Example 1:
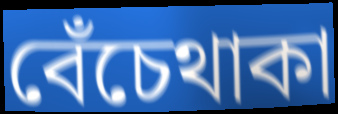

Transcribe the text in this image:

বেঁচেথাকা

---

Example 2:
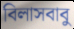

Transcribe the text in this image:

বিলাসবাবু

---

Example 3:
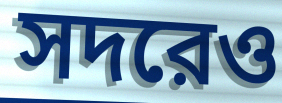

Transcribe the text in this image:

সদরেও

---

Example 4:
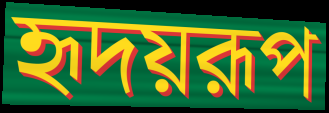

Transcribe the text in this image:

হৃদয়রূপ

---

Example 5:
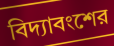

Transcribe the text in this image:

বিদ্যাবংশের